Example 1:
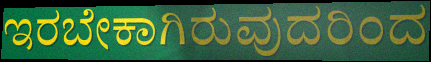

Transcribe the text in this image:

ಇರಬೇಕಾಗಿರುವುದರಿಂದ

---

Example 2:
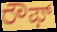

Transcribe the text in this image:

ರೌಫ್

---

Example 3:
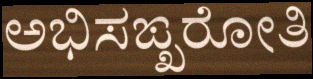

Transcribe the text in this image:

ಅಭಿಸಙ್ಖರೋತಿ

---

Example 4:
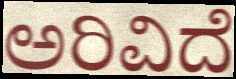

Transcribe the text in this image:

ಅರಿವಿದೆ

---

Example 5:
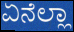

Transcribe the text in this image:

ಏನೆಲ್ಲಾ